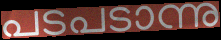
പടപടാന്നു